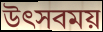
উৎসবময়